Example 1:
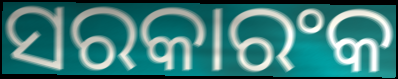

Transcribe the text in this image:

ସରକାରଂକ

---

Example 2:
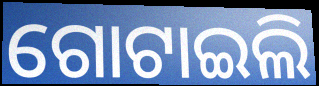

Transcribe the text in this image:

ଗୋଟାଇଲି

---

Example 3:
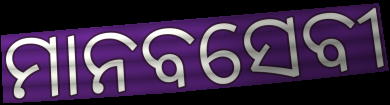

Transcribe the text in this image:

ମାନବସେବୀ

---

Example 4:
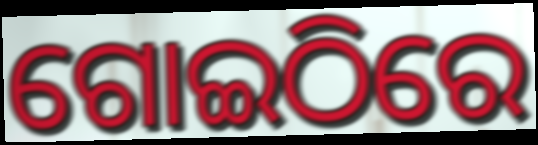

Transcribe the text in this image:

ଗୋଇଠିରେ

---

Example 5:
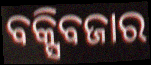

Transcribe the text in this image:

ବକ୍ସିବଜାର